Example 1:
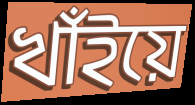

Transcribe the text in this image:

খাঁইয়ে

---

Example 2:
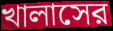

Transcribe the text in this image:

খালাসের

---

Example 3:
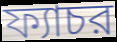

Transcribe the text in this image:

ফ্যাচর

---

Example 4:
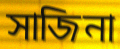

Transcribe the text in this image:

সাজিনা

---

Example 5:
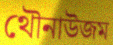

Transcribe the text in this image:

থৌনাউজম